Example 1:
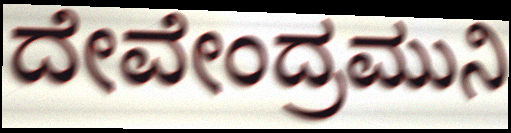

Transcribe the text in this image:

ದೇವೇಂದ್ರಮುನಿ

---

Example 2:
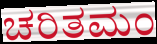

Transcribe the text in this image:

ಚರಿತಮಂ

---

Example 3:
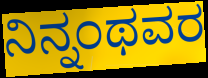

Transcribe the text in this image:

ನಿನ್ನಂಥವರ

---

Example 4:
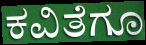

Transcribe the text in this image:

ಕವಿತೆಗೂ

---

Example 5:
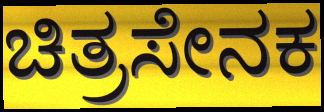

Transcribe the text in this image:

ಚಿತ್ರಸೇನಕ